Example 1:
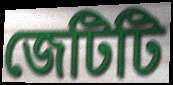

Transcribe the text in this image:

জেটিটি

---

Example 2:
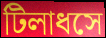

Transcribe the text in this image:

টিলাধসে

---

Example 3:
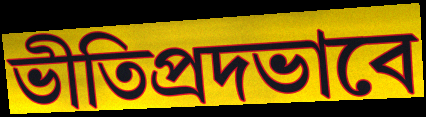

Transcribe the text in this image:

ভীতিপ্রদভাবে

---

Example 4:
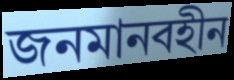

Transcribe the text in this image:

জনমানবহীন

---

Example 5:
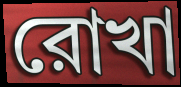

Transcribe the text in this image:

রোখা